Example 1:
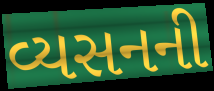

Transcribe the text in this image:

વ્યસનની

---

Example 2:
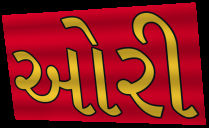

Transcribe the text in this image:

ઓરી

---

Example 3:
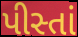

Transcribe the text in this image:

પીસ્તાં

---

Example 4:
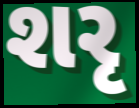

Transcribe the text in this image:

શરૃ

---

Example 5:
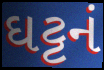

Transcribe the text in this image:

ઘટ્ટનં